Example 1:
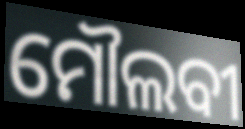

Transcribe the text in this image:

ମୌଲବୀ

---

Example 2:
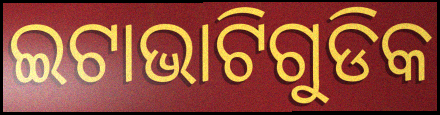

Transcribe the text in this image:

ଇଟାଭାଟିଗୁଡିକ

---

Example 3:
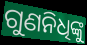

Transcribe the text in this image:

ଗୁଣନିଧିଙ୍କୁ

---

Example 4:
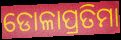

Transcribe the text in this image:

ଡୋଳାପ୍ରତିମା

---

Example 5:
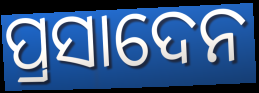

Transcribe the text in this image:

ପ୍ରସାଦେନ